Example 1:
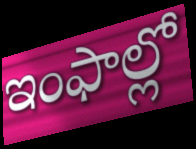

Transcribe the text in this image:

ఇంఫాల్లో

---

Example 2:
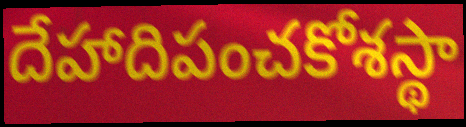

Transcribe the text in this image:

దేహాదిపంచకోశస్థా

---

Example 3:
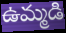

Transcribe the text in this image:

ఉమ్మడి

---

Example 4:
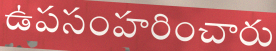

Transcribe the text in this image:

ఉపసంహరించారు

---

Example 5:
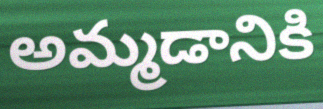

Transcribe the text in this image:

అమ్మడానికి